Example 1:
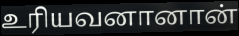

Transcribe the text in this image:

உரியவனானான்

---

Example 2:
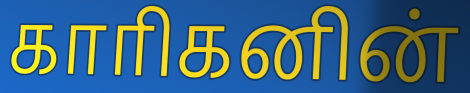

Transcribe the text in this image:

காரிகனின்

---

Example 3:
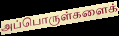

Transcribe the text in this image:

அப்பொருள்களைக்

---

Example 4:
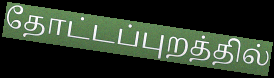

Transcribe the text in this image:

தோட்டப்புறத்தில்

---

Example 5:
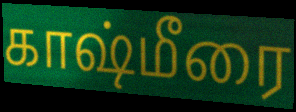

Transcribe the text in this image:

காஷ்மீரை